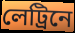
লেট্রিনে